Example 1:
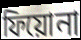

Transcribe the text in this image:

ফিয়োনা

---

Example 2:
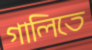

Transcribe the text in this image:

গালিতে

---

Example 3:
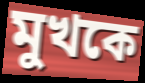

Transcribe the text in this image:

মুখকে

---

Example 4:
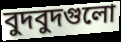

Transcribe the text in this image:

বুদবুদগুলো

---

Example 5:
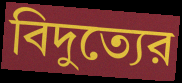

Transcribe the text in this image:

বিদুত্যের